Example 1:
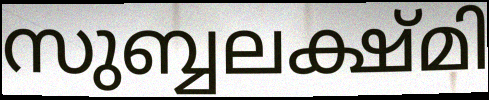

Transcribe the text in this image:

സുബ്ബലക്ഷ്മി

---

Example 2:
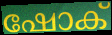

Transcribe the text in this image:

ഷോക്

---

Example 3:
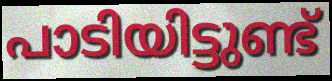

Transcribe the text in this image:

പാടിയിട്ടുണ്ട്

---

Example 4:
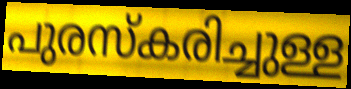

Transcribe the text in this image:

പുരസ്കരിച്ചുള്ള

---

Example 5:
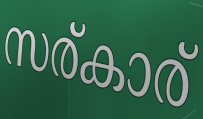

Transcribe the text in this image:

സര്കാര്